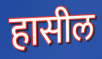
हासील